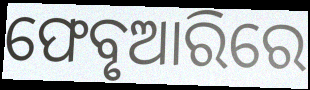
ଫେବୃଆରିରେ